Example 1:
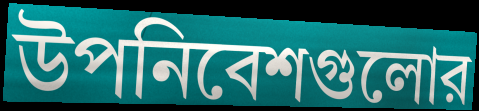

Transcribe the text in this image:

উপনিবেশগুলোর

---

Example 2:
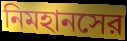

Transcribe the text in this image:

নিমহানসের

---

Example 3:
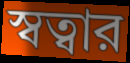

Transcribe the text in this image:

স্বত্বার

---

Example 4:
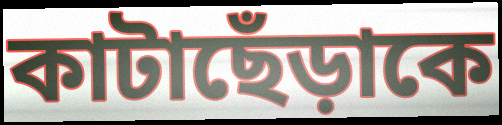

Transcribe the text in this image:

কাটাছেঁড়াকে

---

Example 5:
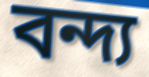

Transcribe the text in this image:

বন্দ্য